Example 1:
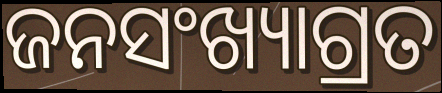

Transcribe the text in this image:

ଜନସଂଖ୍ୟାଗ୍ରତ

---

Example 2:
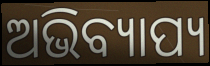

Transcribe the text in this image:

ଅଭିବ୍ୟାପ୍ୟ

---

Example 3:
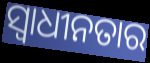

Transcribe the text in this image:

ସ୍ବାଧୀନତାର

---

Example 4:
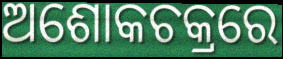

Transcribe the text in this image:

ଅଶୋକଚକ୍ରରେ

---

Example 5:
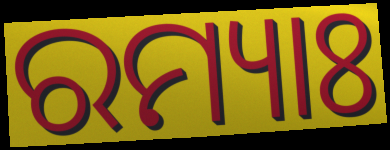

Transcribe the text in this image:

ରମ୍ୟାଃ